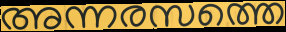
അന്നരസത്തെ